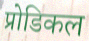
प्रोडिकल